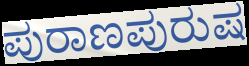
ಪುರಾಣಪುರುಷ